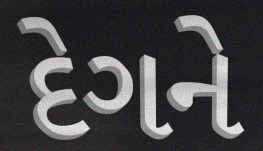
દેગને